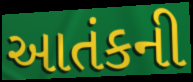
આતંકની